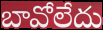
బావోలేదు